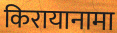
किरायानामा